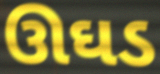
ઊઘડ